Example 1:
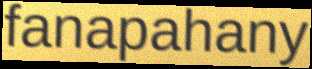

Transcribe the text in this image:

fanapahany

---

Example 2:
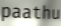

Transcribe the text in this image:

paathu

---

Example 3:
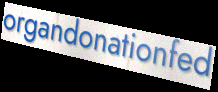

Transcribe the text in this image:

organdonationfed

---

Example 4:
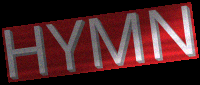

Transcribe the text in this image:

HYMN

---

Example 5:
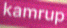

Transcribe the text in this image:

kamrup